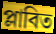
প্লাবিত